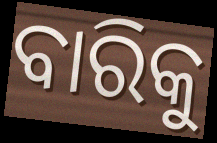
ବାରିକୁ